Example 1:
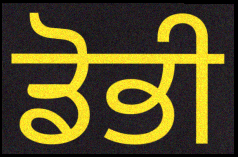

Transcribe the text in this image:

ਡੋਭੀ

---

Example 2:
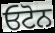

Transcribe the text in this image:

ਓਟੋਨ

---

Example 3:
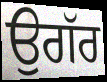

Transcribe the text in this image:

ਉਗੱਰ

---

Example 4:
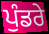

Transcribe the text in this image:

ਪੁੰਡਰੇ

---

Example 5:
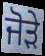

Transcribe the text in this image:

ਜੋਡ਼ੇ